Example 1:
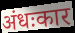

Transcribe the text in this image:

अंधःकार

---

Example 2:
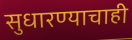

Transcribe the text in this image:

सुधारण्याचाही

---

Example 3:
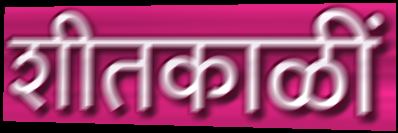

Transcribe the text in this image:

शीतकाळीं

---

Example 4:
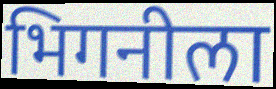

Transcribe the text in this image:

भिगनीला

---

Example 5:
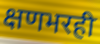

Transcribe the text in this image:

क्षणभरही